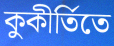
কুকীর্তিতে